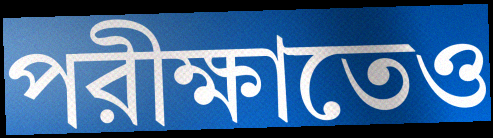
পরীক্ষাতেও